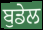
ਬੁਡੇਲ